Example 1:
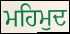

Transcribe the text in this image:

ਮਹਿਮੁਦ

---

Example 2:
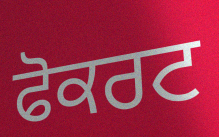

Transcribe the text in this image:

ਫੋਕਰਟ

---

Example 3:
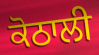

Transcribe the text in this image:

ਕੋਠਾਲੀ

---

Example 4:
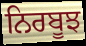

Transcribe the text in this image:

ਨਿਰਬੂਝ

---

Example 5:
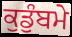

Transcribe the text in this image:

ਕੁਡੁੰਬਮੇ